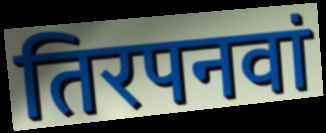
तिरपनवां